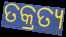
ତକ୍ରତ୍ୟ